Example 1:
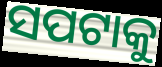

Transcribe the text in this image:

ସପଟାକୁ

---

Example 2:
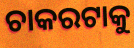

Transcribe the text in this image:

ଚାକରଟାକୁ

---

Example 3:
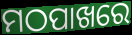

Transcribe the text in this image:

ମଠପାଖରେ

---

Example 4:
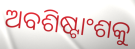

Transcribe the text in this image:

ଅବଶିଷ୍ଟାଂଶକୁ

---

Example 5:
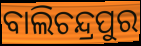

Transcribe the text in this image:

ବାଲିଚନ୍ଦ୍ରପୁର